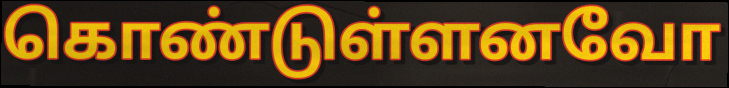
கொண்டுள்ளனவோ